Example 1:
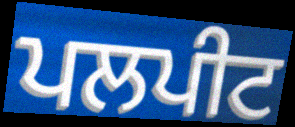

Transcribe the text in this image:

ਪਲਪੀਟ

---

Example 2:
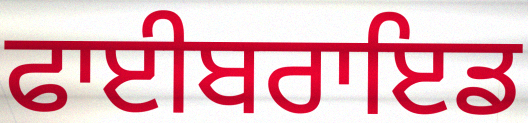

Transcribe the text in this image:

ਫਾਈਬਰਾਇਡ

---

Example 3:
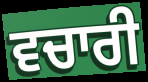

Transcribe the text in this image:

ਵਚਾਰੀ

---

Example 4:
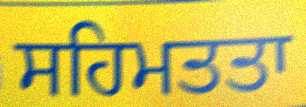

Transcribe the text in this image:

ਸਹਿਮਤਤਾ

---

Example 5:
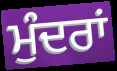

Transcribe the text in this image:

ਮੁੰਦਰਾਂ